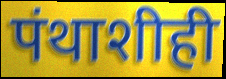
पंथाशीही